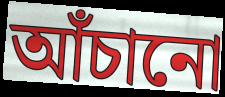
আঁচানো